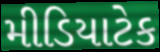
મીડિયાટેક